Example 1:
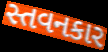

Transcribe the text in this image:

સ્તવનકાર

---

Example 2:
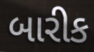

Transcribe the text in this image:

બારીક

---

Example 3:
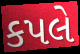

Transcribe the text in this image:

કપલે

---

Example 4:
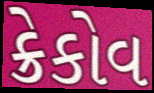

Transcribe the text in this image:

ક્રેકોવ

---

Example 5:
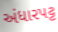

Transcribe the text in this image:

અંધારપટ્ટ